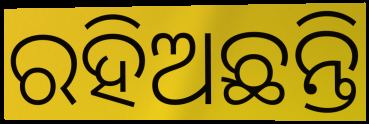
ରହିଅଛନ୍ତି